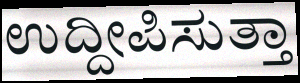
ಉದ್ದೀಪಿಸುತ್ತಾ